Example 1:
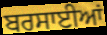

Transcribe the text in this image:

ਬਰਸਾਈਆਂ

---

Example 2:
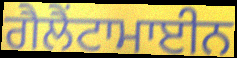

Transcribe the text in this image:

ਗੈਲੈਂਟਾਮਾਈਨ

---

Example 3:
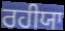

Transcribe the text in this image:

ਰਹੀਯਾ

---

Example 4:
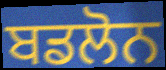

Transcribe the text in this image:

ਬਡਲੋਨ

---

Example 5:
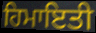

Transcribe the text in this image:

ਹਿਮਾਇਤੀ